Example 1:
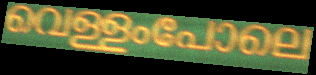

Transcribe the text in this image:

വെള്ളംപോലെ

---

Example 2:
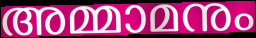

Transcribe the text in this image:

അമ്മാമനും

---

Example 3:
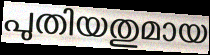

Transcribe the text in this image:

പുതിയതുമായ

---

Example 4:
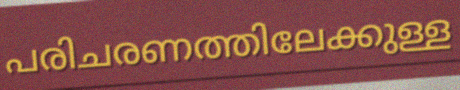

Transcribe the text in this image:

പരിചരണത്തിലേക്കുള്ള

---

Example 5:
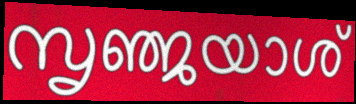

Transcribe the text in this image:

സൃഞ്ജയാശ്